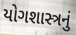
યોગશાસ્ત્રનું